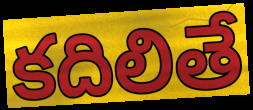
కదిలితే